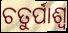
ଚତୁର୍ପାଶ୍ୱ